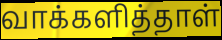
வாக்களித்தாள்